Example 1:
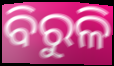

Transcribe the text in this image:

ବିରୁଳି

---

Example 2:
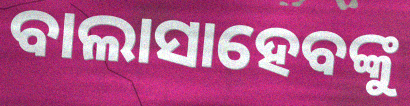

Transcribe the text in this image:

ବାଲାସାହେବଙ୍କୁ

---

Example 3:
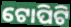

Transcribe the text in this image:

ଟୋପିଟି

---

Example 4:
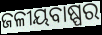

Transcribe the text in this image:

ଜଳୀୟବାଷ୍ପର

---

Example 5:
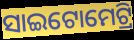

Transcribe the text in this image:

ସାଇଟୋମେଟ୍ରି